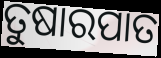
ତୁଷାରପାତ